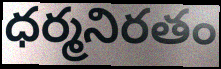
ధర్మనిరతం